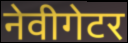
नेवीगेटर